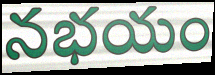
నభయం